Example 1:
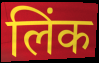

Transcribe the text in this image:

लिंक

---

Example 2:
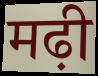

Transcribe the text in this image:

मढ़ी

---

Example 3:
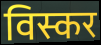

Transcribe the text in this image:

विस्कर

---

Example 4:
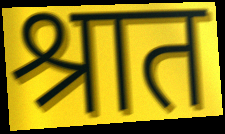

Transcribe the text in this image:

श्रात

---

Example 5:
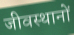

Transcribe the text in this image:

जीवस्थानों